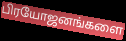
பிரயோஜனங்களை